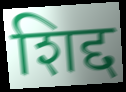
शिद्द